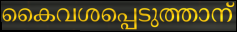
കൈവശപ്പെടുത്താന്